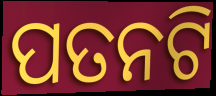
ପତନଟି